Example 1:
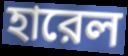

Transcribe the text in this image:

হারেল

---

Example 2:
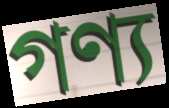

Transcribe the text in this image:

গণ্য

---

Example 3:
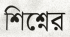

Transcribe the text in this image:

শিশ্নের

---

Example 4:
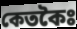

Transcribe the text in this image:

কেতকৈঃ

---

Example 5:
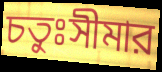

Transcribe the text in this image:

চতুঃসীমার